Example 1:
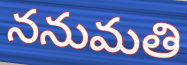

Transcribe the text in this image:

ననుమతి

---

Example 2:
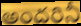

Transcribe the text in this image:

అందరినీ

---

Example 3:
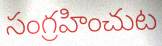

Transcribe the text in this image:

సంగ్రహించుట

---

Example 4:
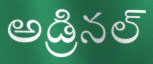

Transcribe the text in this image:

అడ్రినల్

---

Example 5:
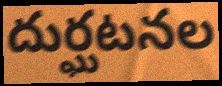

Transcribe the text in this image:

దుర్ఘటనల